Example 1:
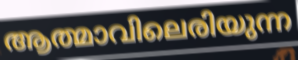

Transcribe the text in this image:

ആത്മാവിലെരിയുന്ന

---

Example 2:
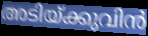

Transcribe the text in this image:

അടിയ്ക്കുവിൻ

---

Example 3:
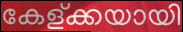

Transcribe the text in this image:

കേള്ക്കയായി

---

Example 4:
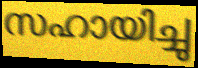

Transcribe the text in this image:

സഹായിച്ചു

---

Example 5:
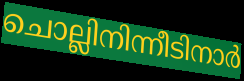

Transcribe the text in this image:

ചൊല്ലിനിന്നീടിനാർ